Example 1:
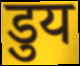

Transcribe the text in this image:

डुय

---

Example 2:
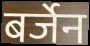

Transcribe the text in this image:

बर्जेन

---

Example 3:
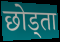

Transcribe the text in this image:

छोड्ता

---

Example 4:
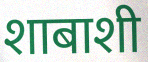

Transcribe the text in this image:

शाबाशी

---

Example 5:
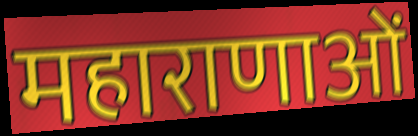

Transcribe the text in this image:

महाराणाओं